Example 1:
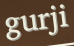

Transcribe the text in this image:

gurji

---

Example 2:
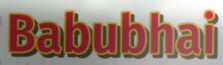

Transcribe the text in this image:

Babubhai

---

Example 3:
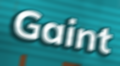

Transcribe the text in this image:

Gaint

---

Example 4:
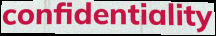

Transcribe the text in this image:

confidentiality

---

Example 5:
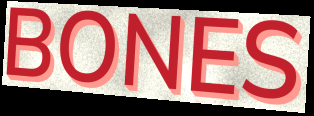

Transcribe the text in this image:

BONES